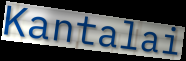
Kantalai